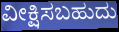
ವೀಕ್ಷಿಸಬಹುದು